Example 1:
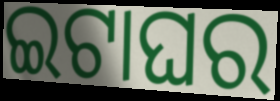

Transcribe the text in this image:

ଇଟାଘର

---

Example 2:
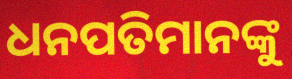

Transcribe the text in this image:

ଧନପତିମାନଙ୍କୁ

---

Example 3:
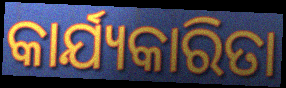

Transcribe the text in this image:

କାର୍ଯ୍ୟକାରିତା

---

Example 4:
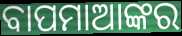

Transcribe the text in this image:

ବାପମାଆଙ୍କର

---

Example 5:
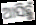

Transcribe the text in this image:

ଆସିଛୁଁ